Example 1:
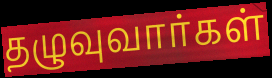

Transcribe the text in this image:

தழுவுவார்கள்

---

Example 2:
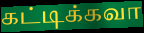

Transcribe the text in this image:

கட்டிக்கவா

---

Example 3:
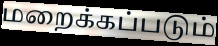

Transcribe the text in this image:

மறைக்கப்படும்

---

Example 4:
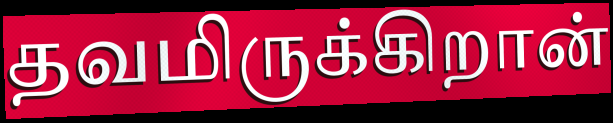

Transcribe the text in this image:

தவமிருக்கிறான்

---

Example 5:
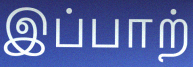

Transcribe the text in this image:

இப்பாற்